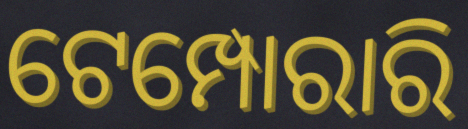
ଟେମ୍ପୋରାରି